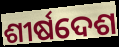
ଶୀର୍ଷଦେଶ